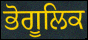
ਭੋਗੂਲਿਕ